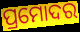
ପ୍ରମୋଦର